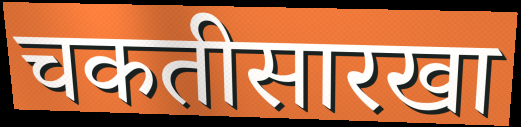
चकतीसारखा